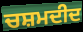
ਚਸ਼ਮਦੀਦ